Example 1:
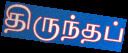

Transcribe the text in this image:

திருந்தப்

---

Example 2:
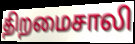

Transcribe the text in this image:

திறமைசாலி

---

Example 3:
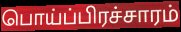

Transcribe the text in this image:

பொய்ப்பிரச்சாரம்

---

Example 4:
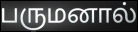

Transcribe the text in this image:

பருமனால்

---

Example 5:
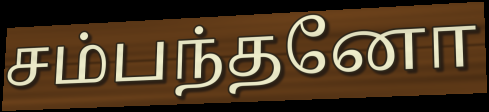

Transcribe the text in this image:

சம்பந்தனோ